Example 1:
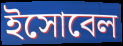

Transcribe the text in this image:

ইসোবেল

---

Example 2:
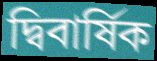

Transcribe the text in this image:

দ্বিবার্ষিক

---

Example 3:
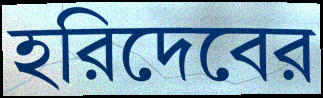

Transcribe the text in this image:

হরিদেবের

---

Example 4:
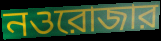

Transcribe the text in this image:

নওরোজার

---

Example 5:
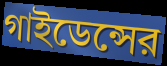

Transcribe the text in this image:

গাইডেন্সের